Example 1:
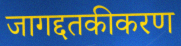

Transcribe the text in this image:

जागद्दतकीकरण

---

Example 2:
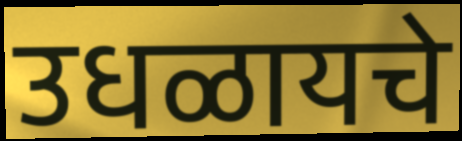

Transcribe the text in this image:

उधळायचे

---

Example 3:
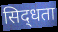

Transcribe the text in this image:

सिद्‌धता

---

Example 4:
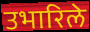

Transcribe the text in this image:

उभारिले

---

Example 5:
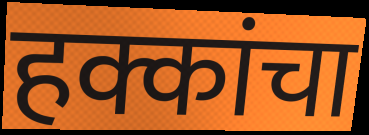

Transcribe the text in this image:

हक्कांचा